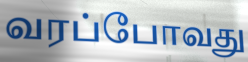
வரப்போவது